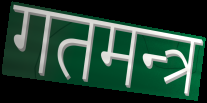
गतमन्त्र